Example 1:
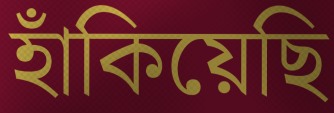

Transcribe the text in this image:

হাঁকিয়েছি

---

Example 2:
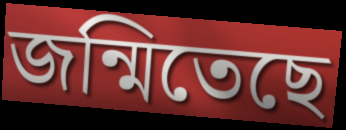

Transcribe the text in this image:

জন্মিতেছে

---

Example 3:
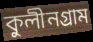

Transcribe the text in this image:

কুলীনগ্রাম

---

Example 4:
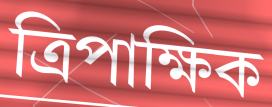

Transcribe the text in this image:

ত্রিপাক্ষিক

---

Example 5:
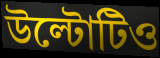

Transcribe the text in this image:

উল্টোটিও